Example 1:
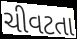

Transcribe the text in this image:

ચીવટતા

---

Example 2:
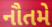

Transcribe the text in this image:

નૌતમે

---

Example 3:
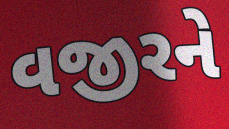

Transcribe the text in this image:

વજીરને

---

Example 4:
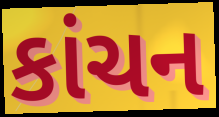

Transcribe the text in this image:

કાંચન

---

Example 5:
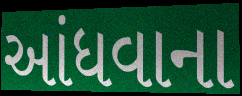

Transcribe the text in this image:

આંધવાના